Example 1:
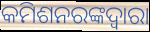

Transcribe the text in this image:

କମିଶନରଙ୍କଦ୍ୱାରା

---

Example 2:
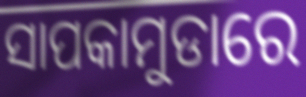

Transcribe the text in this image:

ସାପକାମୁଡାରେ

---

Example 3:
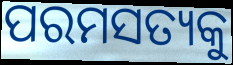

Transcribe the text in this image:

ପରମସତ୍ୟକୁ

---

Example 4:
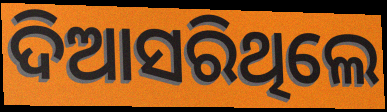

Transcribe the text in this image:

ଦିଆସରିଥିଲେ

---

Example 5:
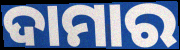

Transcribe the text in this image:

ଦାମାର